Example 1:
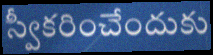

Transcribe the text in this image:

స్వీకరించేందుకు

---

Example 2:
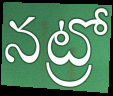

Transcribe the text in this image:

నట్రో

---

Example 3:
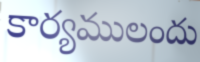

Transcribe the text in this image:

కార్యములందు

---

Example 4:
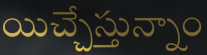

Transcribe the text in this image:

యిచ్చేస్తున్నాం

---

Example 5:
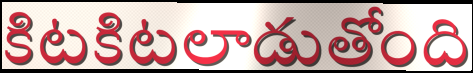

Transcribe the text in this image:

కిటకిటలాడుతోంది